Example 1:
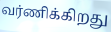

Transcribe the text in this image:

வர்ணிக்கிறது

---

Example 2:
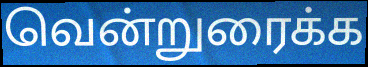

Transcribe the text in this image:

வென்றுரைக்க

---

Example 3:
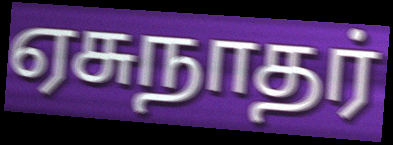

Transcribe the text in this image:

ஏசுநாதர்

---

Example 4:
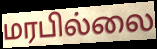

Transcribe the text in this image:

மரபில்லை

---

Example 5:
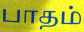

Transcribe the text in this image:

பாதம்